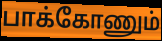
பாக்கோணும்